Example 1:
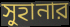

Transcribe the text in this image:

সুহানার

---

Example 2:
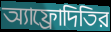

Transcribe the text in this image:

অ্যাফ্রোদিতির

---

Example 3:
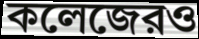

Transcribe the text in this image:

কলেজেরও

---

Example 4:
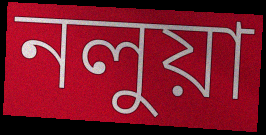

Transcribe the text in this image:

নলুয়া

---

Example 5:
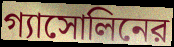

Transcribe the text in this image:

গ্যাসোলিনের